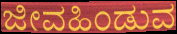
ಜೀವಹಿಂಡುವ